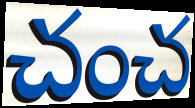
చంచ